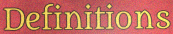
Definitions